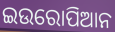
ଇଉରୋପିଆନ